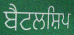
ਬੈਟਲਸ਼ਿਪ